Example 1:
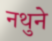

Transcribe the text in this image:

नथुने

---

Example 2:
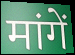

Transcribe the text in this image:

मांगें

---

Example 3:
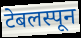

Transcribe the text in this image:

टेबलस्पून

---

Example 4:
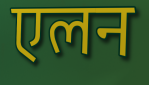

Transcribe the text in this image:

एलन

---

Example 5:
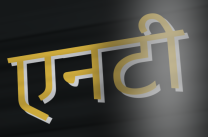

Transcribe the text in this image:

एनटी